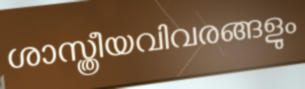
ശാസ്ത്രീയവിവരങ്ങളും